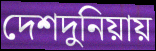
দেশদুনিয়ায়